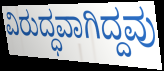
ವಿರುದ್ಧವಾಗಿದ್ದವು